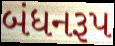
બંધનરૂપ